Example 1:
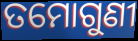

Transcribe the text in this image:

ତମୋଗୁଣୀ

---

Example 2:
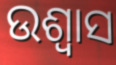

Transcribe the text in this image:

ଉଶ୍ୱାସ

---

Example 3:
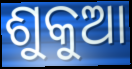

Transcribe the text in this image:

ଶୁକୁଆ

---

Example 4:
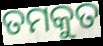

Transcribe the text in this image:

ତମକୁତ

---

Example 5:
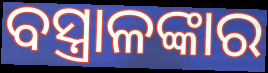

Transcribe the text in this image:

ବସ୍ତ୍ରାଳଙ୍କାର